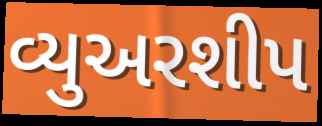
વ્યુઅરશીપ